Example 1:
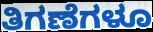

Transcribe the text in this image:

ತಿಗಣೆಗಳೂ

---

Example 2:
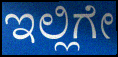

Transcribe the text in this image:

ಇಲ್ಲಿಗೇ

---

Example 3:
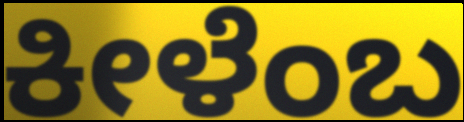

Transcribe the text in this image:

ಕೀಳೆಂಬ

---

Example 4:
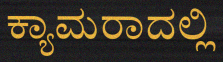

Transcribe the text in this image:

ಕ್ಯಾಮರಾದಲ್ಲಿ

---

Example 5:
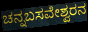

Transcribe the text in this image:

ಚನ್ನಬಸವೇಶ್ವರನ